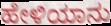
ಹೇಳಿಯಾನು